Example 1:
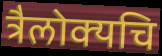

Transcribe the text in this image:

त्रैलोक्यचि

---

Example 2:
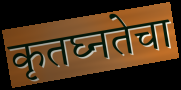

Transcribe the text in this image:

कृतघ्नतेचा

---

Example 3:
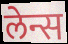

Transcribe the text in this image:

लेन्स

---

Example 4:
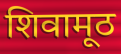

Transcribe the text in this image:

शिवामूठ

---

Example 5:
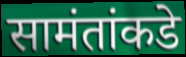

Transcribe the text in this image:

सामंतांकडे